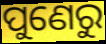
ପୁଣେରୁ